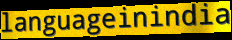
languageinindia